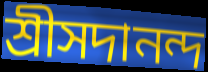
শ্রীসদানন্দ